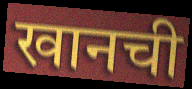
खानची